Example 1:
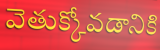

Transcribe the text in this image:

వెతుక్కోవడానికి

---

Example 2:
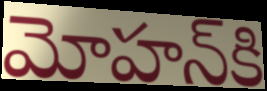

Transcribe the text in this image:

మోహన్‌కి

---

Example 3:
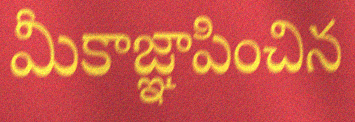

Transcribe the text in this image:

మీకాజ్ఞాపించిన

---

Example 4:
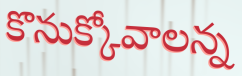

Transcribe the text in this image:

కొనుక్కోవాలన్న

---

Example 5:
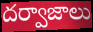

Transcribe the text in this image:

దర్వాజాలు